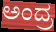
ಅಂದ್ರ